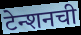
टेन्शनची